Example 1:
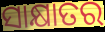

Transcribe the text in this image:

ସାକ୍ଷାତର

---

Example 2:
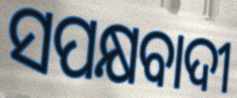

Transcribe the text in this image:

ସପକ୍ଷବାଦୀ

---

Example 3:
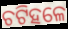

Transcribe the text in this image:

ଚଟିହଳେ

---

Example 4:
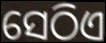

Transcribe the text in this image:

ସେଠିଏ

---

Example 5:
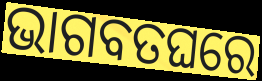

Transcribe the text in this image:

ଭାଗବତଘରେ